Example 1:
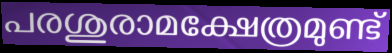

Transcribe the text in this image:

പരശുരാമക്ഷേത്രമുണ്ട്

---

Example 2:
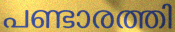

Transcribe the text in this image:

പണ്ടാരത്തി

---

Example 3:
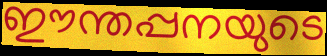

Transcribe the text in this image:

ഈന്തപ്പനയുടെ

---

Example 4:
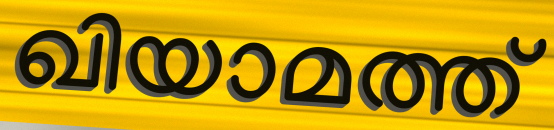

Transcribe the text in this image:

ഖിയാമത്ത്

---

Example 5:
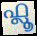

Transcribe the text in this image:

ഫ്ലൂ